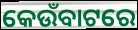
କେଉଁବାଟରେ